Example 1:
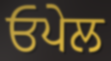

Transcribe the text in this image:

ਓਪੇਲ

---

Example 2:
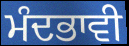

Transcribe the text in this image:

ਮੰਦਭਾਵੀ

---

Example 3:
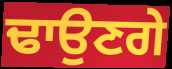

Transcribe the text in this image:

ਢਾਉਣਗੇ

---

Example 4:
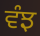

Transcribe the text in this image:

ਵੰਝ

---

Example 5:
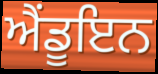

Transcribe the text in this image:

ਐਂਡੂਇਨ